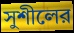
সুশীলের